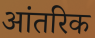
आंतरिक